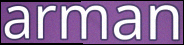
arman